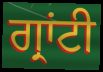
ਗ੍ਰਾਂਟੀ